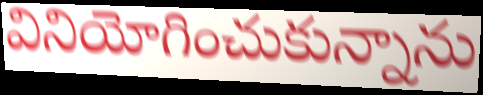
వినియోగించుకున్నాను